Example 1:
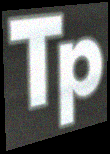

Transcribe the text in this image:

Tp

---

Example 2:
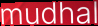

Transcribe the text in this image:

mudhal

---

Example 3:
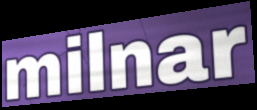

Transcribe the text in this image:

milnar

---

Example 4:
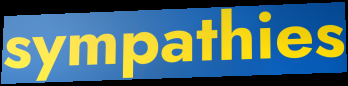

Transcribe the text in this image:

sympathies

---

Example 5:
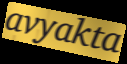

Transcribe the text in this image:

avyakta